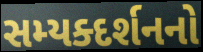
સમ્યક્દર્શનનો